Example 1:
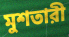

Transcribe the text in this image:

মুশতারী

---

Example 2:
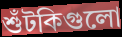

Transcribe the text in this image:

শুঁটকিগুলো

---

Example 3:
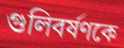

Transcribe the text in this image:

গুলিবর্ষণকে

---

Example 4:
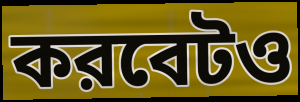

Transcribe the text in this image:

করবেটও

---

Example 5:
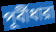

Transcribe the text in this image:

পূর্বীধারা